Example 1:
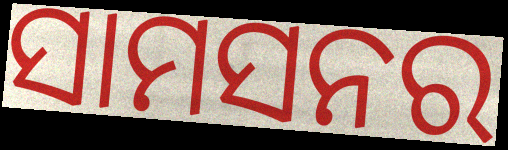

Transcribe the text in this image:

ସାମସନର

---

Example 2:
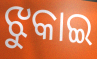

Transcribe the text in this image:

ଝୁକାଇ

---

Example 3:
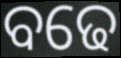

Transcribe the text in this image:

ବଢେ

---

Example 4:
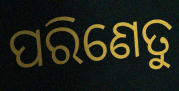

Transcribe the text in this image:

ପରିଣେତୁ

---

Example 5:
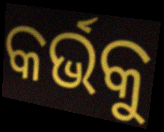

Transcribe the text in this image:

କର୍ଭକୁ